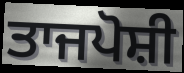
ਤਾਜਪੋਸ਼ੀ